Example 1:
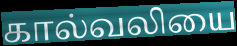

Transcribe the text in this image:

கால்வலியை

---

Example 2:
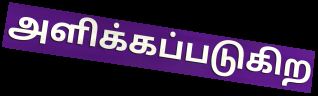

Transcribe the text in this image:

அளிக்கப்படுகிற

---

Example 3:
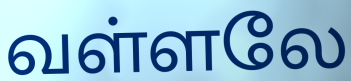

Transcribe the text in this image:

வள்ளலே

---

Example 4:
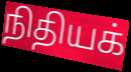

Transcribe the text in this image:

நிதியக்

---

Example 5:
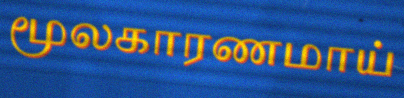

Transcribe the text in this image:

மூலகாரணமாய்